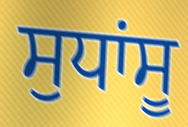
ਸੁਧਾਂਸੂ